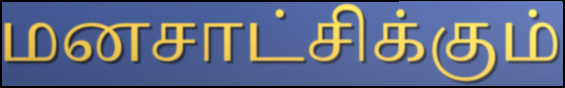
மனசாட்சிக்கும்